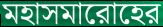
মহাসমারোহের